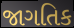
જાગતિક